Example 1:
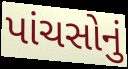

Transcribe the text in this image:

પાંચસોનું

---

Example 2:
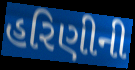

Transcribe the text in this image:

હરિણીની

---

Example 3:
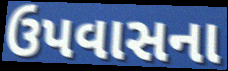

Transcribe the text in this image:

ઉપવાસના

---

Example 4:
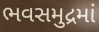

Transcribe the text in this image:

ભવસમુદ્રમાં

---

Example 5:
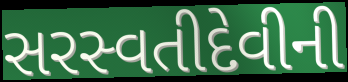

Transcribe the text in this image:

સરસ્વતીદેવીની